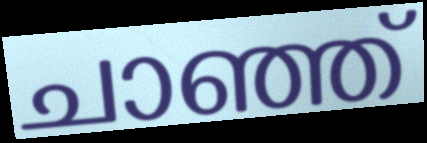
ചാഞ്ഞ്